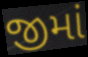
જીમાં